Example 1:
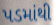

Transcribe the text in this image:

પડમાંથી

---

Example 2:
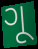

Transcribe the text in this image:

ગૂ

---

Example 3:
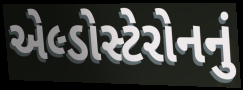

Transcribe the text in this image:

એલ્ડોસ્ટેરોનનું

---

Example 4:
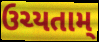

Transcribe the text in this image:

ઉચ્યતામ્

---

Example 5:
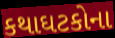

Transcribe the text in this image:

કથાઘટકોના